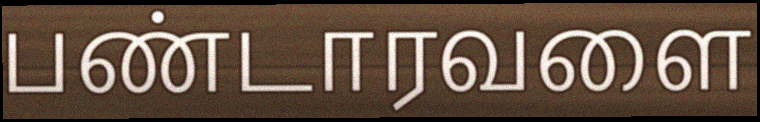
பண்டாரவளை